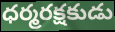
ధర్మరక్షకుడు